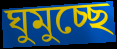
ঘুমুচ্ছে